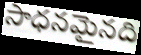
సాధనమైనది